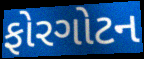
ફોરગોટન